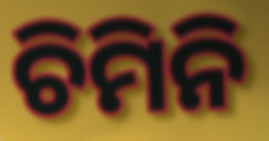
ଚିମିନି